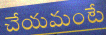
చేయమంటే